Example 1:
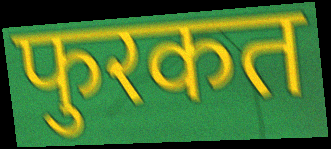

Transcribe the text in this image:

फुरकत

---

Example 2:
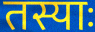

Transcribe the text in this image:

तस्याः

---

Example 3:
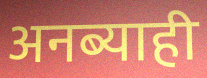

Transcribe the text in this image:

अनब्याही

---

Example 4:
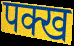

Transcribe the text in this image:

पक्ख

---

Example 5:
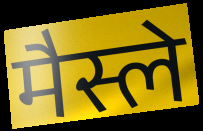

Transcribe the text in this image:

मैस्ले